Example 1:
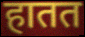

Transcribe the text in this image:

हातत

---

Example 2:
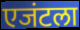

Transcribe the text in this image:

एजंटला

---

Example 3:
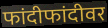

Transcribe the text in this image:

फांदीफांदीवर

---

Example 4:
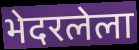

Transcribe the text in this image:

भेदरलेला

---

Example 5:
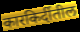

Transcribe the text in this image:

कारकिर्दीतील